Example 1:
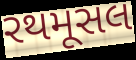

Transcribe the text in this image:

રથમૂસલ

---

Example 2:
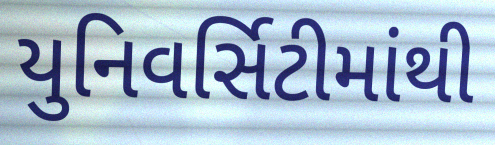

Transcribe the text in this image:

યુનિવર્સિટીમાંથી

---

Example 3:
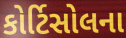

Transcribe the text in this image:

કોર્ટિસોલના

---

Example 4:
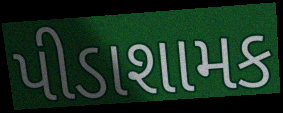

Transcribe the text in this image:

પીડાશામક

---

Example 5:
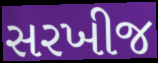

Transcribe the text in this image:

સરખીજ